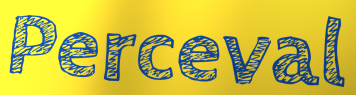
Perceval